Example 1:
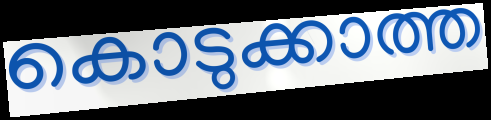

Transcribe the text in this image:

കൊടുക്കാത്ത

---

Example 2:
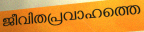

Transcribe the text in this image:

ജീവിതപ്രവാഹത്തെ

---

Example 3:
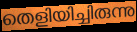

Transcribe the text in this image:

തെളിയിച്ചിരുന്നു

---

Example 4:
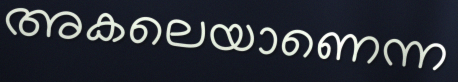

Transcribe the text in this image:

അകലെയാണെന്ന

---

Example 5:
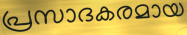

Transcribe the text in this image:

പ്രസാദകരമായ